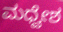
ಮಧ್ವೇಶ